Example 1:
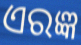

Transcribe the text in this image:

ଏରଜ୍ଞ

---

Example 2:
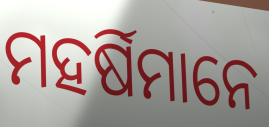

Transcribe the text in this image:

ମହର୍ଷିମାନେ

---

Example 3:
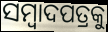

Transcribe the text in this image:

ସମ୍ବାଦପତ୍ରକୁ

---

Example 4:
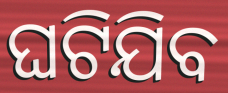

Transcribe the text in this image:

ଘଟିଯିବ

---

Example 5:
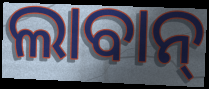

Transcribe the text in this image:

ଲାବାନ୍